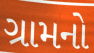
ગ્રામનો